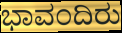
ಭಾವಂದಿರು